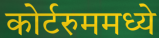
कोर्टरुममध्ये